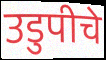
उडुपीचे